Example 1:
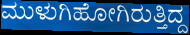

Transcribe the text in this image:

ಮುಳುಗಿಹೋಗಿರುತ್ತಿದ್ದ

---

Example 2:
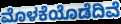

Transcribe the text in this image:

ಮೊಳಕೆಯೊಡೆದಿವೆ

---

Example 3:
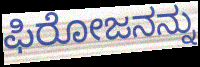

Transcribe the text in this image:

ಫಿರೋಜನನ್ನು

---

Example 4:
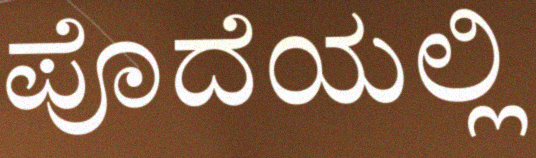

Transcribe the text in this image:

ಪೊದೆಯಲ್ಲಿ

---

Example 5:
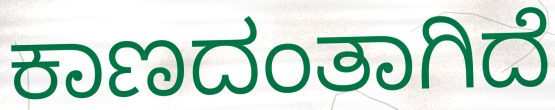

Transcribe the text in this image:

ಕಾಣದಂತಾಗಿದೆ